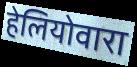
हेलियोवारा